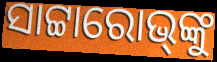
ସାଟ୍ଟାରୋଭ୍‌ଙ୍କୁ